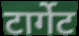
टार्गेट